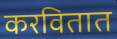
करवितात